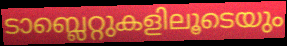
ടാബ്ലെറ്റുകളിലൂടെയും